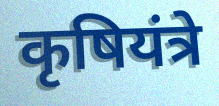
कृषियंत्रे